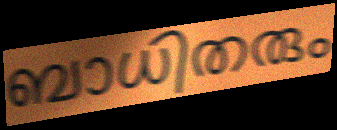
ബാധിതരും